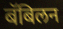
बॅबिलन